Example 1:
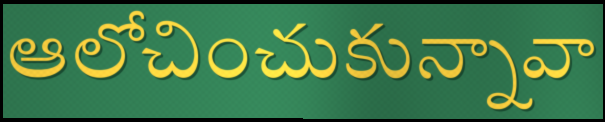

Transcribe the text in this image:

ఆలోచించుకున్నావా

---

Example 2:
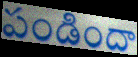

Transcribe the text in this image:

పండిందా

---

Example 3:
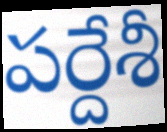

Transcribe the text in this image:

పర్దేశీ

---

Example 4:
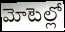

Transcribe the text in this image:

మోటెల్లో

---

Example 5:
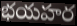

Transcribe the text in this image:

భయహర